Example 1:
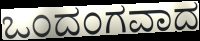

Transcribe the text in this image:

ಒಂದಂಗವಾದ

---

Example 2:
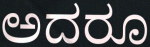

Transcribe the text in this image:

ಅದರೂ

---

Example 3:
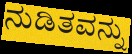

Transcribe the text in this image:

ನುಡಿತವನ್ನು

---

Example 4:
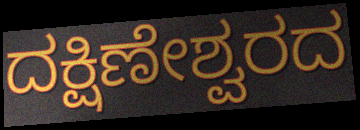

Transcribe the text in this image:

ದಕ್ಷಿಣೇಶ್ವರದ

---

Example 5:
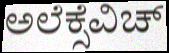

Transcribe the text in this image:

ಅಲೆಕ್ಸೆವಿಚ್